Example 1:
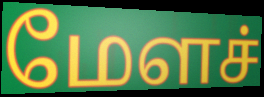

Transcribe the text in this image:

மேளச்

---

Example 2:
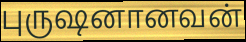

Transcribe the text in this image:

புருஷனானவன்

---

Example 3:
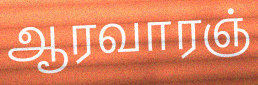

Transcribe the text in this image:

ஆரவாரஞ்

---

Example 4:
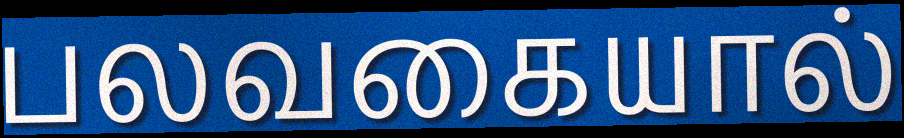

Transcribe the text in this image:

பலவகையால்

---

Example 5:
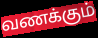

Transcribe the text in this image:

வணக்கும்